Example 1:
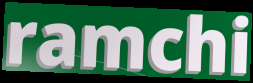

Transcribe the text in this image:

ramchi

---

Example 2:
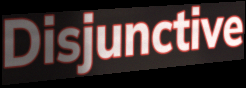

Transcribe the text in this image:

Disjunctive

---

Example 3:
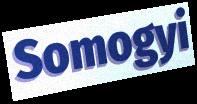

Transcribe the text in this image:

Somogyi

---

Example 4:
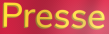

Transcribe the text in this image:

Presse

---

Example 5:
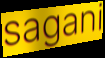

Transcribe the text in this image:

sagani